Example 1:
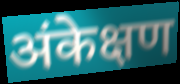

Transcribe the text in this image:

अंकेक्षण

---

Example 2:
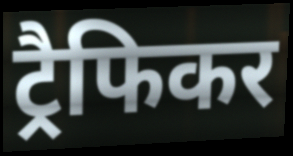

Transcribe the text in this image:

ट्रैफिकर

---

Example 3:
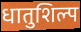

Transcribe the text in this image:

धातुशिल्प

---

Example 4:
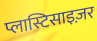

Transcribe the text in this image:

प्लास्टिसाइज़र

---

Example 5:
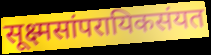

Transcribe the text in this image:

सूक्ष्मसांपरायिकसंयत